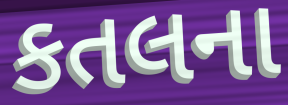
કતલના